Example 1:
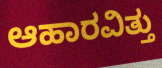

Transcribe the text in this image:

ಆಹಾರವಿತ್ತು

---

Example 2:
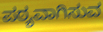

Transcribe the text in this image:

ಪಠ್ಯವಾಗಿಸುವ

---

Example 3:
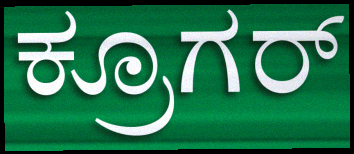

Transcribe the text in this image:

ಕ್ರೂಗರ್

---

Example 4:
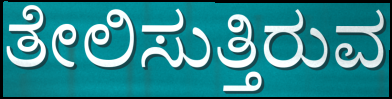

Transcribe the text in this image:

ತೇಲಿಸುತ್ತಿರುವ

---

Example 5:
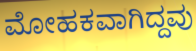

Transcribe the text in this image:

ಮೋಹಕವಾಗಿದ್ದವು